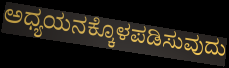
ಅಧ್ಯಯನಕ್ಕೊಳಪಡಿಸುವುದು